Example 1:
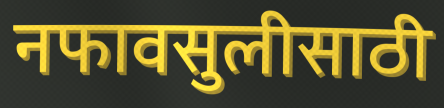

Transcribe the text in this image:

नफावसुलीसाठी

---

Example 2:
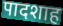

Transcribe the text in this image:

पादशाह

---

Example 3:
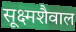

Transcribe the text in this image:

सूक्ष्मशैवाल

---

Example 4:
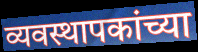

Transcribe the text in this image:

व्यवस्थापकांच्या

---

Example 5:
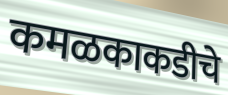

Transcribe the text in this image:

कमळकाकडीचे